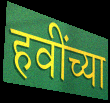
हवींच्या